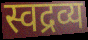
स्वद्रव्य